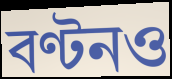
বণ্টনও